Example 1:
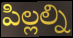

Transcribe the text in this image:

పిల్లల్ని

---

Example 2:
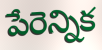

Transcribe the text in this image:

పేరెన్నిక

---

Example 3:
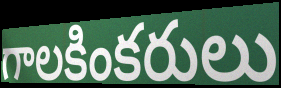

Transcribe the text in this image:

గాలకింకరులు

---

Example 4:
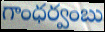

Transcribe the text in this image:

గాంధర్వంబు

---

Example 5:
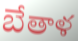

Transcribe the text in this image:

బేతాళ